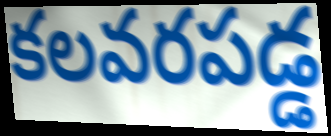
కలవరపడ్డ